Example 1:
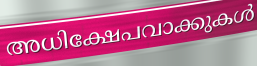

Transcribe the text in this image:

അധിക്ഷേപവാക്കുകൾ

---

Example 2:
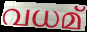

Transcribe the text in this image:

വധമ്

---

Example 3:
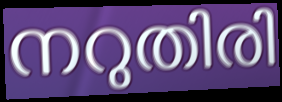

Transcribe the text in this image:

നറുതിരി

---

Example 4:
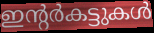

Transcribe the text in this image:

ഇന്റർകട്ടുകൾ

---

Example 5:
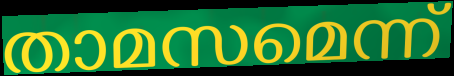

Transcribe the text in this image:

താമസമെന്ന്